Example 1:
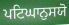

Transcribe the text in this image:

ਪਟਿਘਾਨੁਸਯੋ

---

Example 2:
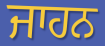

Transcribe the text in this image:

ਜਾਹਨ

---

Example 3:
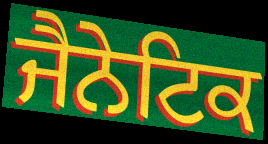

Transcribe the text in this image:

ਜੈਨੇਟਿਕ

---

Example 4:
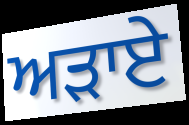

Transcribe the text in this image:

ਅੜਾਏ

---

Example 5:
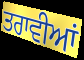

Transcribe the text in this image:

ਤਰਾਵੀਆਂ